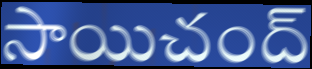
సాయిచంద్